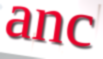
anc